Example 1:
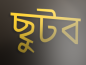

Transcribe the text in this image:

ছুটব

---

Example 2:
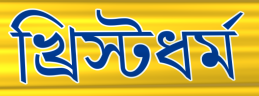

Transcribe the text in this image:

খ্রিস্টধর্ম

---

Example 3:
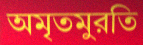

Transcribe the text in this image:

অমৃতমুরতি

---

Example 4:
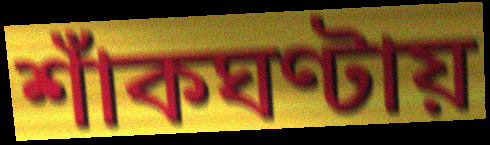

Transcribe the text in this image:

শাঁকঘণ্টায়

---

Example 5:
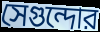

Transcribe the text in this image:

সেগুন্দোর